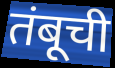
तंबूची